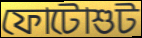
ফোটোশুট